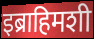
इब्राहिमशी